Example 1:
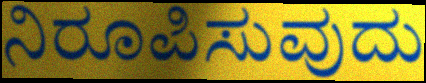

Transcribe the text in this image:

ನಿರೂಪಿಸುವುದು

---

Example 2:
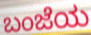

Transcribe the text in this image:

ಬಂಜೆಯ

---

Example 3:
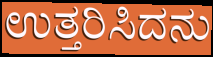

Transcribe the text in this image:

ಉತ್ತರಿಸಿದನು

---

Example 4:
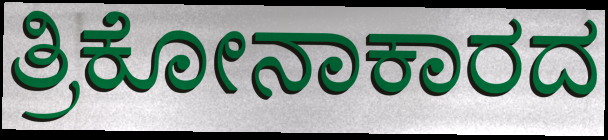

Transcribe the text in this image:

ತ್ರಿಕೋನಾಕಾರದ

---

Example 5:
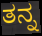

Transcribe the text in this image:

ತನ್ನ